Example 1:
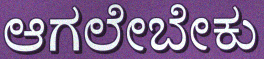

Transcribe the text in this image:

ಆಗಲೇಬೇಕು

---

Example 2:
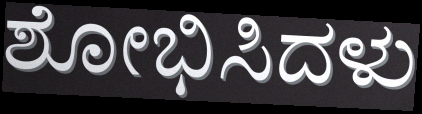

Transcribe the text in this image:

ಶೋಭಿಸಿದಳು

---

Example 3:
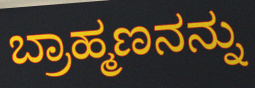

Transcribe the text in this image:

ಬ್ರಾಹ್ಮಣನನ್ನು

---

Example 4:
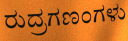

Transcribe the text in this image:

ರುದ್ರಗಣಂಗಳು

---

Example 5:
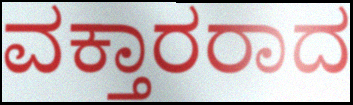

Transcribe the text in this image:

ವಕ್ತಾರರಾದ